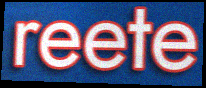
reete